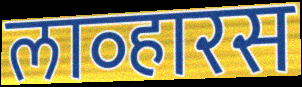
लाव्हारस